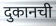
दुकानची